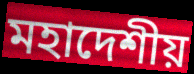
মহাদেশীয়